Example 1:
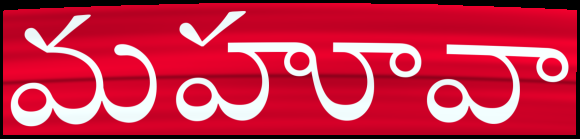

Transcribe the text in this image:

మహూవా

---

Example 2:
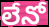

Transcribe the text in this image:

లేనో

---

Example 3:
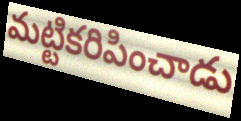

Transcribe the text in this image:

మట్టికరిపించాడు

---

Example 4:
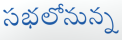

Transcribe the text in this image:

సభలోనున్న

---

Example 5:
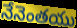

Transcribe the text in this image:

నేనెంతయు